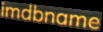
imdbname